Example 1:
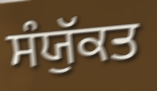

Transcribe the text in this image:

ਸੰਯੁੱਕਤ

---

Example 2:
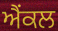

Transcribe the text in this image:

ਐਂਕਲ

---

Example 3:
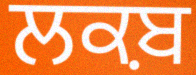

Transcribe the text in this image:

ਲਕ਼ਬ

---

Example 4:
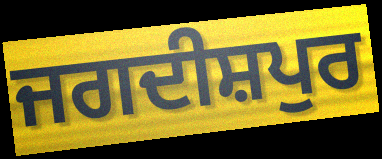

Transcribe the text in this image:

ਜਗਦੀਸ਼ਪੁਰ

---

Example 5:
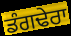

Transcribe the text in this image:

ਡੰਗਢੇਰਾ